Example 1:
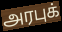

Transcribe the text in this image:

அரபுக்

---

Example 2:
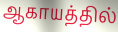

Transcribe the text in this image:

ஆகாயத்தில்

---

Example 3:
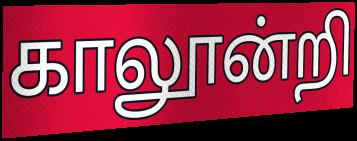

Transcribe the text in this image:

காலூன்றி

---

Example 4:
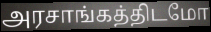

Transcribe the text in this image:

அரசாங்கத்திடமோ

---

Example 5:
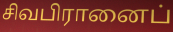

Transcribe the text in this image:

சிவபிரானைப்